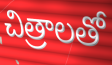
చిత్రాలతో